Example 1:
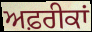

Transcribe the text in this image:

ਅਫ਼ਰੀਕਾਂ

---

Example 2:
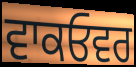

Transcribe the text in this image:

ਵਾਕਓਵਰ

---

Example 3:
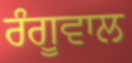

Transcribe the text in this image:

ਰੰਗੂਵਾਲ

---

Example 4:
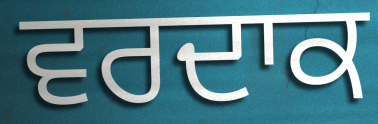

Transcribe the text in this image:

ਵਰਦਾਕ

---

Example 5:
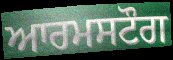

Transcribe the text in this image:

ਆਰਮਸਟੌਗ